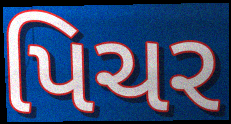
પિચર